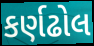
કર્ણઢોલ